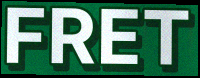
FRET